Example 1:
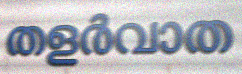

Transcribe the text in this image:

തളർവാത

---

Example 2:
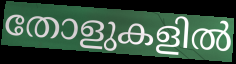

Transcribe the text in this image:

തോളുകളിൽ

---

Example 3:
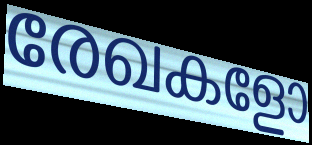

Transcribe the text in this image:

രേഖകളോ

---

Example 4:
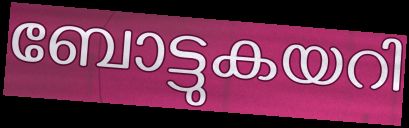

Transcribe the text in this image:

ബോട്ടുകയറി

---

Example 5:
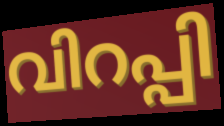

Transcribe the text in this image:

വിറപ്പി